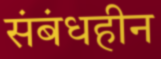
संबंधहीन